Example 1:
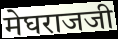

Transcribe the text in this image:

मेघराजजी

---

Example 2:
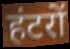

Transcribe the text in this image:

हंटरों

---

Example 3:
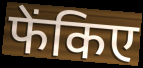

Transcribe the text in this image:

फेंकिए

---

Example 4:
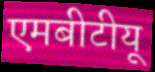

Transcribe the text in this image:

एमबीटीयू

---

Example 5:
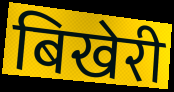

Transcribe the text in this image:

बिखेरी